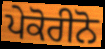
ਪੇਕੋਰੀਨੋ